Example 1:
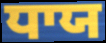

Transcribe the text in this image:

ਧਾਯ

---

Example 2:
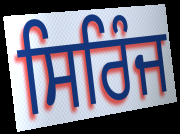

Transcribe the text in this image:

ਸਿਰਿੰਜ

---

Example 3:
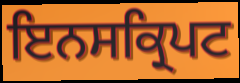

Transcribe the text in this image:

ਇਨਸਕ੍ਰਿਪਟ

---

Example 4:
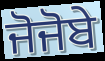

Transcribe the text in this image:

ਜੋਜੋਬੇ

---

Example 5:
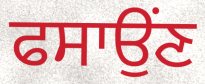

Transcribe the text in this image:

ਫਸਾਉਂਣ